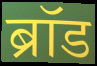
ब्रॉड